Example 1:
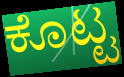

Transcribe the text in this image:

ಕೊಟ್ಟ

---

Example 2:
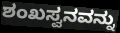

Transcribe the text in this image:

ಶಂಖಸ್ವನವನ್ನು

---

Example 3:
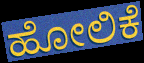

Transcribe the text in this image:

ಹೋಲಿಕೆ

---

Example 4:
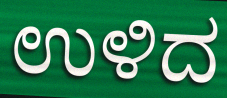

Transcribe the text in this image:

ಉಳಿದ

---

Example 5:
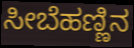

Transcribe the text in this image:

ಸೀಬೆಹಣ್ಣಿನ